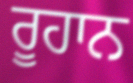
ਰੂਹਾਨ